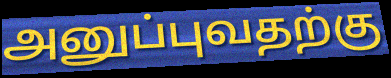
அனுப்புவதற்கு